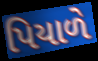
પિયાળે